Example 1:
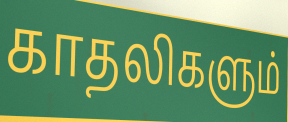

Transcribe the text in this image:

காதலிகளும்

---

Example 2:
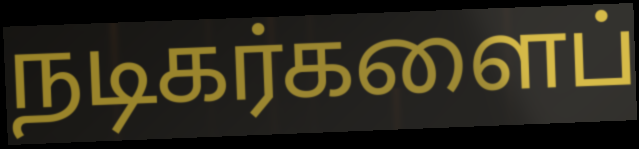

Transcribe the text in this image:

நடிகர்களைப்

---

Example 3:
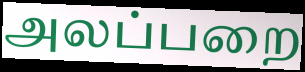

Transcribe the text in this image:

அலப்பறை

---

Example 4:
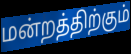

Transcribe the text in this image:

மன்றத்திற்கும்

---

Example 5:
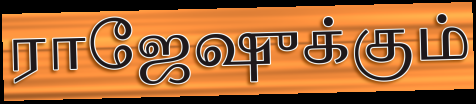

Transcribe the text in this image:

ராஜேஷுக்கும்